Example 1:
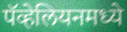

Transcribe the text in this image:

पॅव्हेलियनमध्ये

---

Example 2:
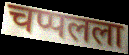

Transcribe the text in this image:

चप्पलला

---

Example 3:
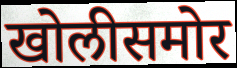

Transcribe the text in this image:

खोलीसमोर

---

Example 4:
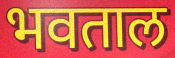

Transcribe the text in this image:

भवताल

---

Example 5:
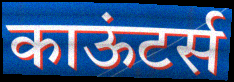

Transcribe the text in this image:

काऊंटर्स